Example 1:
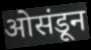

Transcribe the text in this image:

ओसंडून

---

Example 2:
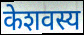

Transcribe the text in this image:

केशवस्य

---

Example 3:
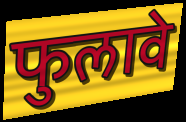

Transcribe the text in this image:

फुलावे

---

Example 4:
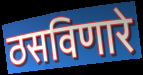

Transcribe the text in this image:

ठसविणारे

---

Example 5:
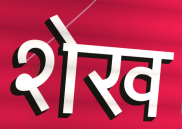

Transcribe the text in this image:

शेख